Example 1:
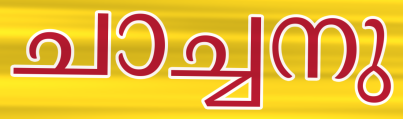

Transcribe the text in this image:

ചാച്ചനു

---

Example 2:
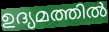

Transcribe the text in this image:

ഉദ്യമത്തിൽ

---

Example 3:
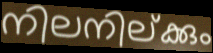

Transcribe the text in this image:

നിലനില്ക്കും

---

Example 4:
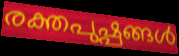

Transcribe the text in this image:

രക്തപുഷ്പങ്ങൾ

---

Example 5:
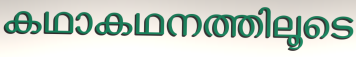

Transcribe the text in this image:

കഥാകഥനത്തിലൂടെ